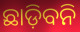
ଛାଡ଼ିବନି